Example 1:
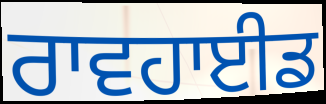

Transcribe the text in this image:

ਰਾਵਹਾਈਡ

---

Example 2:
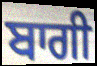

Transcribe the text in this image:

ਬਾਗੀ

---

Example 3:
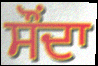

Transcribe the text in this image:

ਸੌਂਦਾ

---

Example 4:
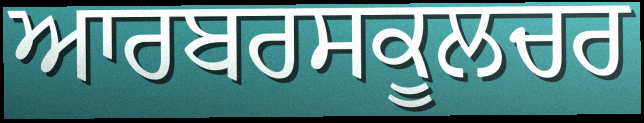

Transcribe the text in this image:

ਆਰਬਰਸਕੂਲਚਰ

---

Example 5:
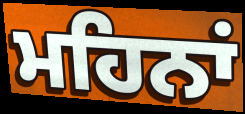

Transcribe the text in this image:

ਮਹਿਨਾਂ